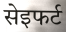
सेइफर्ट